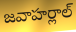
జవాహర్లాల్